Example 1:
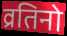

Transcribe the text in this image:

व्रतिनो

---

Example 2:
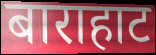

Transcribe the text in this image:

बाराहाट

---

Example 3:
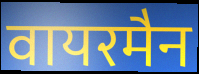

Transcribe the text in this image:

वायरमैन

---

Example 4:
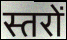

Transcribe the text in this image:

स्तरों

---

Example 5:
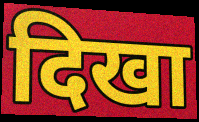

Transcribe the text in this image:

दिखा